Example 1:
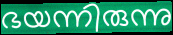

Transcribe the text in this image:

ഭയന്നിരുന്നു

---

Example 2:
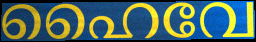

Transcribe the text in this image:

ഹൈവേ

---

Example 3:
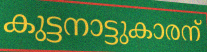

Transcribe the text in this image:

കുട്ടനാട്ടുകാരന്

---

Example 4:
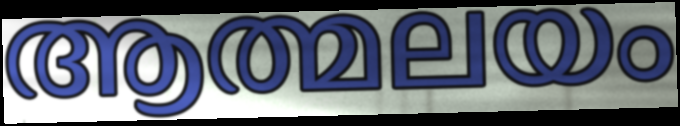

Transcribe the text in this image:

ആത്മലയം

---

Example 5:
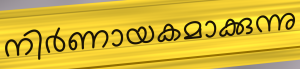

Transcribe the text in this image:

നിർണായകമാക്കുന്നു